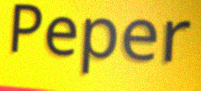
Peper